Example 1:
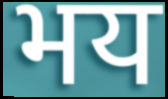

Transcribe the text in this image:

भय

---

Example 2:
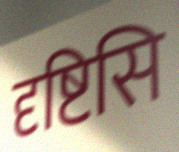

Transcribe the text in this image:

दृष्टिसि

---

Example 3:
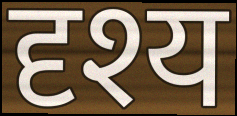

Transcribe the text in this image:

दृश्य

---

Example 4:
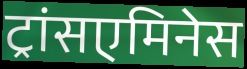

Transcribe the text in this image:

ट्रांसएमिनेस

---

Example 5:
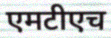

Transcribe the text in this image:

एमटीएच